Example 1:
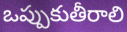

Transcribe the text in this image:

ఒప్పుకుతీరాలి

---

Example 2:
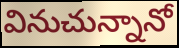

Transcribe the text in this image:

వినుచున్నానో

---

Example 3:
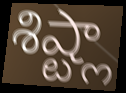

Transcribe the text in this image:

శిష్ట్లా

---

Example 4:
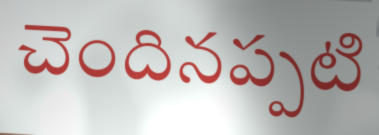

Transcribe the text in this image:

చెందినప్పటి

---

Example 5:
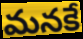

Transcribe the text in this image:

మనకే